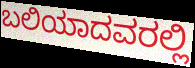
ಬಲಿಯಾದವರಲ್ಲಿ